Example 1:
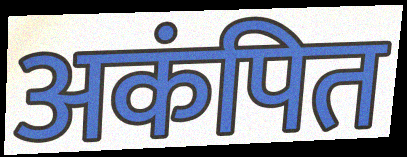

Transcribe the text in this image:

अकंपित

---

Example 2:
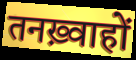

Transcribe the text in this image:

तनख़्वाहों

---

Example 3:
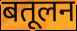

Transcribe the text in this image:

बतूलन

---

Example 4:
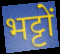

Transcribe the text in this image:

भट्टों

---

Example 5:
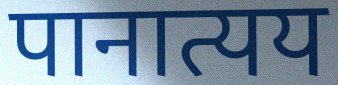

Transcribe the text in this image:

पानात्यय